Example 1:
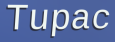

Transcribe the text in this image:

Tupac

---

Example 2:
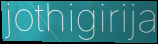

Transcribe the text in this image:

jothigirija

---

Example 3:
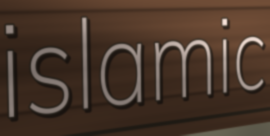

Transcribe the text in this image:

islamic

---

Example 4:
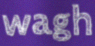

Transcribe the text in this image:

wagh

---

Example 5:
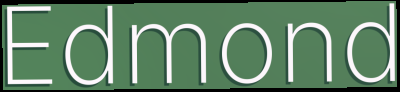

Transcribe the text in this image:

Edmond